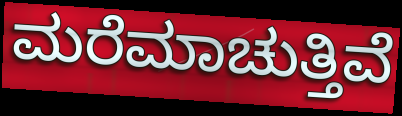
ಮರೆಮಾಚುತ್ತಿವೆ